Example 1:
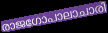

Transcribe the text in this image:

രാജഗോപാലാചാരി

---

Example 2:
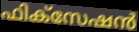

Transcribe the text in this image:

ഫിക്സേഷൻ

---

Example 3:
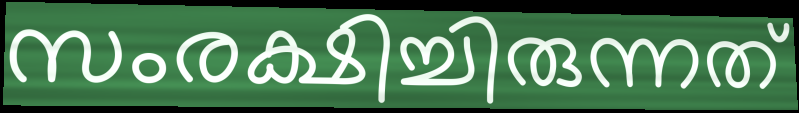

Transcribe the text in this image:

സംരക്ഷിച്ചിരുന്നത്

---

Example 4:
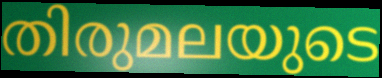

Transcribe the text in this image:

തിരുമലയുടെ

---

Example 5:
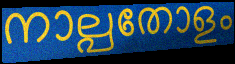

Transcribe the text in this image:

നാല്പതോളം